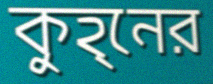
কুহ্‌নের